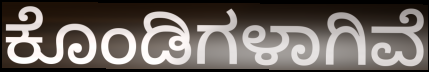
ಕೊಂಡಿಗಳಾಗಿವೆ